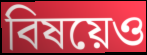
বিষয়েও